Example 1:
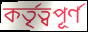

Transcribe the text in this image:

কর্তৃত্বপূর্ণ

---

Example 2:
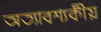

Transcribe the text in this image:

অত্যাবশ্যকীয়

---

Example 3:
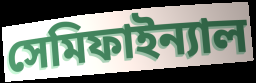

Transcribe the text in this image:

সেমিফাইন্যাল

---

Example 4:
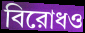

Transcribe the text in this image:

বিরোধও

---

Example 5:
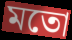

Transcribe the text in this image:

মতো